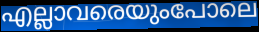
എല്ലാവരെയുംപോലെ